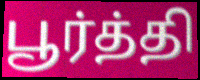
பூர்த்தி